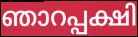
ഞാറപ്പക്ഷി